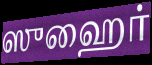
ஸுஹைர்